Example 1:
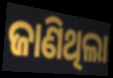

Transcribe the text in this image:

ଜାଣିଥିଲା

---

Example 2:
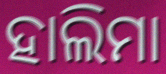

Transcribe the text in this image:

ହାଲିମା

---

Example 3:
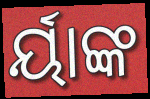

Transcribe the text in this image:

ର୍ୟାଙ୍କ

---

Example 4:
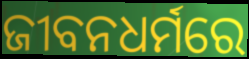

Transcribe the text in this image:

ଜୀବନଧର୍ମରେ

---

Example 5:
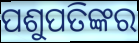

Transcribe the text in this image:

ପଶୁପତିଙ୍କର